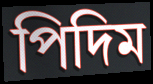
পিদিম